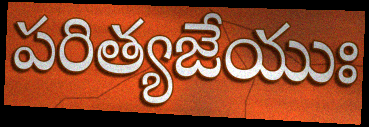
పరిత్యజేయుః